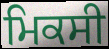
ਮਿਕਸੀ